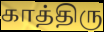
காத்திரு